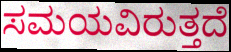
ಸಮಯವಿರುತ್ತದೆ